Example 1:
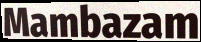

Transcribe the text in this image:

Mambazam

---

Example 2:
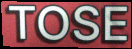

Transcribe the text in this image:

TOSE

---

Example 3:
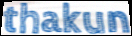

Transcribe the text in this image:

thakun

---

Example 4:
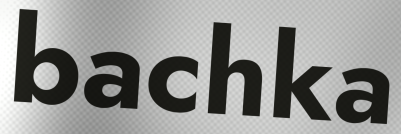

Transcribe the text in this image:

bachka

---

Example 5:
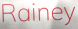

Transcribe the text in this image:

Rainey